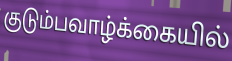
குடும்பவாழ்க்கையில்